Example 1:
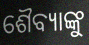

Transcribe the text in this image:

ଶୈବ୍ୟାଙ୍କୁ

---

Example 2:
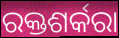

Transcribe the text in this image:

ରକ୍ତଶର୍କରା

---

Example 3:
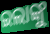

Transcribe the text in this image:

ଇଲାଙ୍କୁ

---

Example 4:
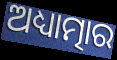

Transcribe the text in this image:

ଅଧ୍ୟାତ୍ମାର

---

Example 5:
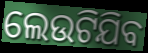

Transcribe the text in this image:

ଲେଉଟିଯିବ